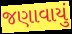
જણાવાયું